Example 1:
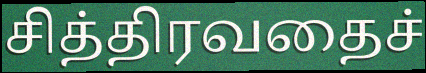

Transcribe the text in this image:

சித்திரவதைச்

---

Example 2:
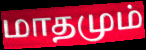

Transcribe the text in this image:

மாதமும்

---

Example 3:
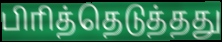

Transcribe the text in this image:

பிரித்தெடுத்தது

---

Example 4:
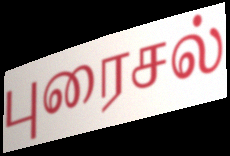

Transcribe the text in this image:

புரைசல்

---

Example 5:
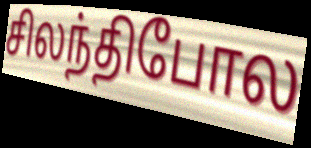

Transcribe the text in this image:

சிலந்திபோல